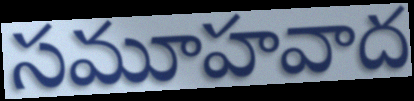
సమూహవాద